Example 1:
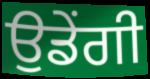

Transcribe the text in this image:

ਉਡੇਂਗੀ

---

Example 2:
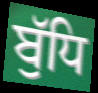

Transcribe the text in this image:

ਬੁੱਧਿ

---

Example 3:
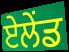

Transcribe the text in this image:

ਏਲੇਂਡ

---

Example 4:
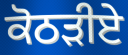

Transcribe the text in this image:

ਕੋਠੜੀਏ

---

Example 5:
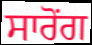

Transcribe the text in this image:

ਸਾਰੋਂਗ